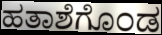
ಹತಾಶೆಗೊಂಡ